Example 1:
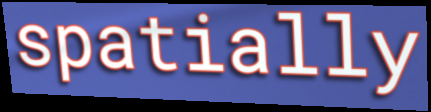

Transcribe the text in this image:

spatially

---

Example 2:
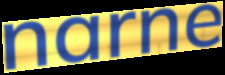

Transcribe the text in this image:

narne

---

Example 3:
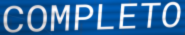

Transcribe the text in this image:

COMPLETO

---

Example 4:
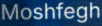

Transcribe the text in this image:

Moshfegh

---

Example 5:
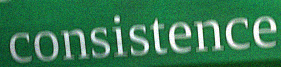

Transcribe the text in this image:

consistence